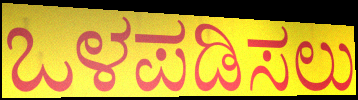
ಒಳಪಡಿಸಲು